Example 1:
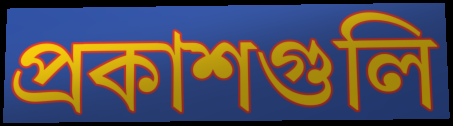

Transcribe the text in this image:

প্রকাশগুলি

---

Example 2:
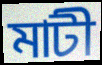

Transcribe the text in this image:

মাটী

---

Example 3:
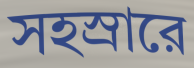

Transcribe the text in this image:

সহস্রারে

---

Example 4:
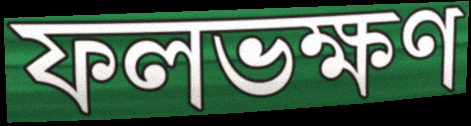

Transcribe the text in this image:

ফলভক্ষণ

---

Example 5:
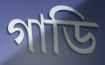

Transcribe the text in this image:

গাডি